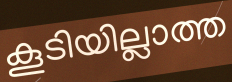
കൂടിയില്ലാത്ത